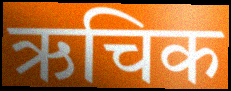
ऋचिक